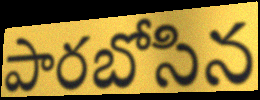
పారబోసిన